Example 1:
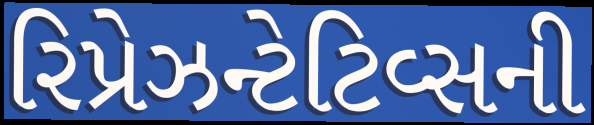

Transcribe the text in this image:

રિપ્રેઝન્ટેટિવ્સની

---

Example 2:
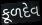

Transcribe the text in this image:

કૂળદેવ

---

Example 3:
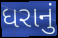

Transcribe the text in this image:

ધરાનું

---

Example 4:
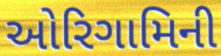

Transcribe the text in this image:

ઓરિગામિની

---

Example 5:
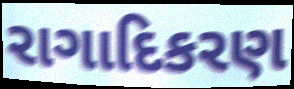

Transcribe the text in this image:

રાગાદિકરણ